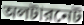
অলটারনেট